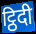
ट्ठिदी